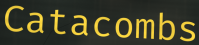
Catacombs